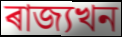
ৰাজ্যখন